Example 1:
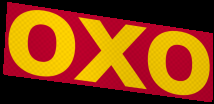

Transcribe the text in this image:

oxo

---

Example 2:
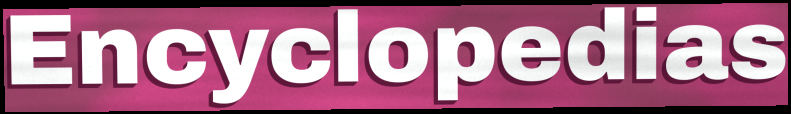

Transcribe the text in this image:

Encyclopedias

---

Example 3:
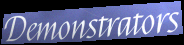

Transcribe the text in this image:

Demonstrators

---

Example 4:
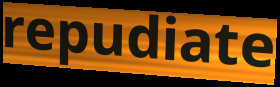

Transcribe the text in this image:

repudiate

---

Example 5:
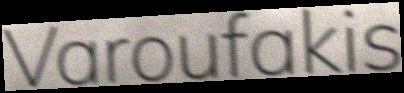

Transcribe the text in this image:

Varoufakis